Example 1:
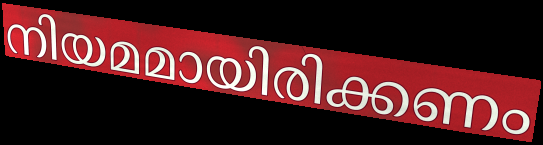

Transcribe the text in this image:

നിയമമായിരിക്കണം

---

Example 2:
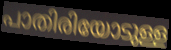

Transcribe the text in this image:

പാതിരിയോടുള്ള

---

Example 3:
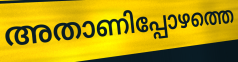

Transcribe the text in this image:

അതാണിപ്പോഴത്തെ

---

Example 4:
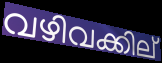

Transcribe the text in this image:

വഴിവക്കില്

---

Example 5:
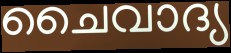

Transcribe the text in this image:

ചൈവാദ്യ